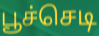
பூச்செடி